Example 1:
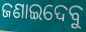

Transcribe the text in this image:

ଜଣାଇଦେବୁ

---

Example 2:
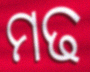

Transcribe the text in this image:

ମଢ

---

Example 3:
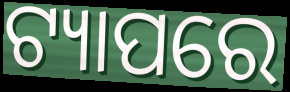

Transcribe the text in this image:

ଟ୍ୟାପରେ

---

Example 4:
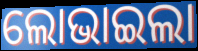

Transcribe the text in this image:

ଲୋଭାଇଲା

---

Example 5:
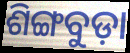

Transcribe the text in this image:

ଶିଙ୍ଗବୁଡ଼ା